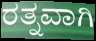
ರತ್ನವಾಗಿ